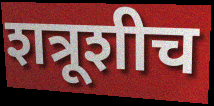
शत्रूशीच